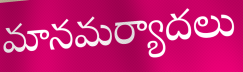
మానమర్యాదలు